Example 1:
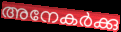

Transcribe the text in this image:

അനേകർക്കു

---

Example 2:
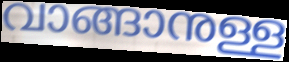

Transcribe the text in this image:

വാങ്ങാനുള്ള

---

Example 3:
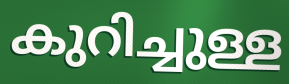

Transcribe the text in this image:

കുറിച്ചുള്ള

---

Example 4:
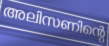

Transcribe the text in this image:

അലിസണിന്റെ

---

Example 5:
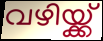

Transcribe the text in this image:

വഴിയ്ക്ക്